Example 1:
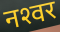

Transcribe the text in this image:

नश्वर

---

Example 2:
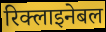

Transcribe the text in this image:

रिक्लाइनेबल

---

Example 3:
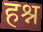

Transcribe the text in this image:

हश्न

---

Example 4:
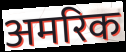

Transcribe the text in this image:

अमरिक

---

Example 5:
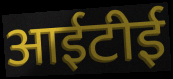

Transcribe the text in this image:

आईटीई